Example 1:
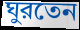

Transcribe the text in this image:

ঘুরতেন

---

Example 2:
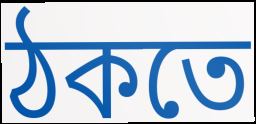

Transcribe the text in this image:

ঠকতে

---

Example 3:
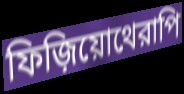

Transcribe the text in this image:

ফিজ়িয়োথেরাপি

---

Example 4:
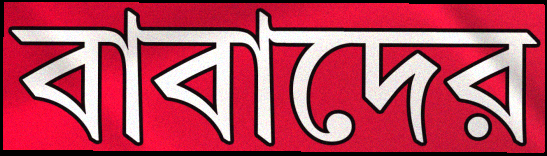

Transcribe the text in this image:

বাবাদের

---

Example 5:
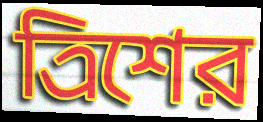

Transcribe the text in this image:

ত্রিশের